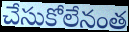
చేసుకోలేనంత